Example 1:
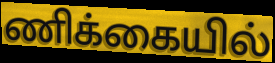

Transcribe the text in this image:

ணிக்கையில்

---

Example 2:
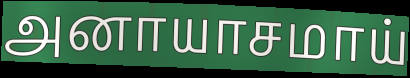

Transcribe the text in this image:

அனாயாசமாய்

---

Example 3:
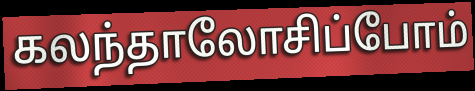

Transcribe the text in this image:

கலந்தாலோசிப்போம்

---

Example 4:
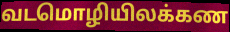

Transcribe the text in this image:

வடமொழியிலக்கண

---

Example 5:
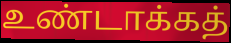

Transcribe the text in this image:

உண்டாக்கத்